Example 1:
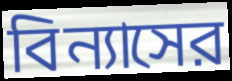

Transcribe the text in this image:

বিন্যাসের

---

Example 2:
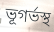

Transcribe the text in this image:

ভূগর্ভস্থ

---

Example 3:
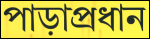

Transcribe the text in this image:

পাড়াপ্রধান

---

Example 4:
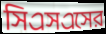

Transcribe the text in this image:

সিএসএসের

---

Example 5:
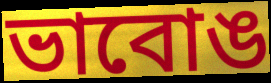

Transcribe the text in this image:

ভাবোঙ